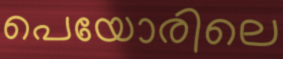
പെയോരിലെ